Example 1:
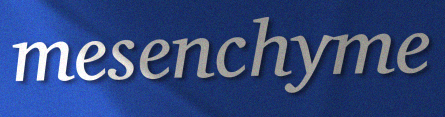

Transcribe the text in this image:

mesenchyme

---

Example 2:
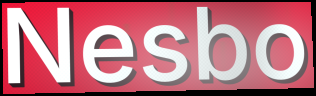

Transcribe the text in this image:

Nesbo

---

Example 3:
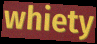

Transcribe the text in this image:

whiety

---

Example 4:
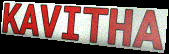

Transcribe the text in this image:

KAVITHA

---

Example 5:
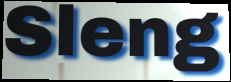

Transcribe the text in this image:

Sleng